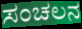
ಸಂಚಲನ